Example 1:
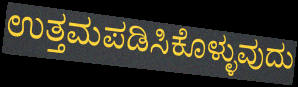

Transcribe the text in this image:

ಉತ್ತಮಪಡಿಸಿಕೊಳ್ಳುವುದು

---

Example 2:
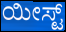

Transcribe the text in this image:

ಯೀಸ್ಟ್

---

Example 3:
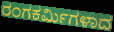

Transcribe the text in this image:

ರಂಗಕರ್ಮಿಗಳಾದ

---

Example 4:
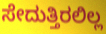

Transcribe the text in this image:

ಸೇದುತ್ತಿರಲಿಲ್ಲ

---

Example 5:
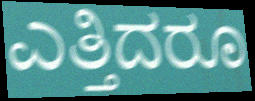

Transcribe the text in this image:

ಎತ್ತಿದರೂ